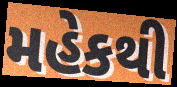
મહેકથી